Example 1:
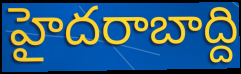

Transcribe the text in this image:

హైదరాబాద్ది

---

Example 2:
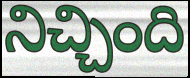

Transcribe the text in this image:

నిచ్చింది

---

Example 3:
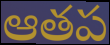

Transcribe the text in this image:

ఆతప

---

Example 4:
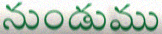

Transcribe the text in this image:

నుండుము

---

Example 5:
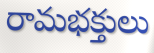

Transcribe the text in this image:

రామభక్తులు